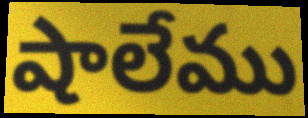
షాలేము